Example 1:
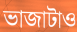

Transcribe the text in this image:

ভাজাটাও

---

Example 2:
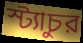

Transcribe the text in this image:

স্ট্যাচুর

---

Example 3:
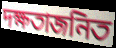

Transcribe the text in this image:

দক্ষতাজনিত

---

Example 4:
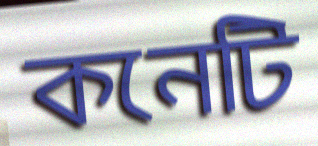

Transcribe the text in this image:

কনেটি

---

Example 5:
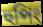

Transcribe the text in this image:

হুপিং